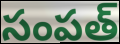
సంపత్